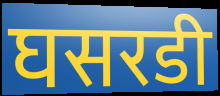
घसरडी